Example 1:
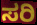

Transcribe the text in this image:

ಸರಿ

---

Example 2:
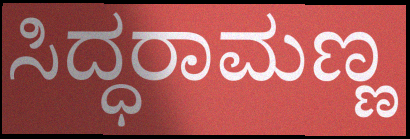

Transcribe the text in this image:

ಸಿದ್ಧರಾಮಣ್ಣ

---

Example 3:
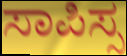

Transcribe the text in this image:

ಸಾಪಿಸ್ಸ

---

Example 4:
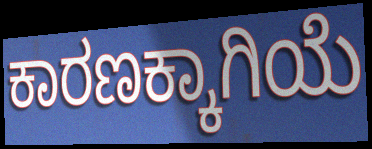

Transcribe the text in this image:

ಕಾರಣಕ್ಕಾಗಿಯೆ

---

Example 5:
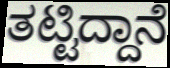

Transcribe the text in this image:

ತಟ್ಟಿದ್ದಾನೆ